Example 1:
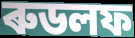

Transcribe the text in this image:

ৰুডলফ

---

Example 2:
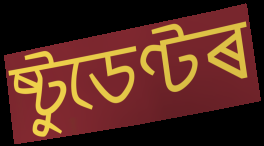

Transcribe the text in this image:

ষ্টুডেণ্টৰ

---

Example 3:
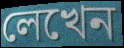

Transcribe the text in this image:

লেখেন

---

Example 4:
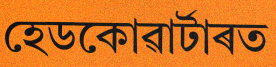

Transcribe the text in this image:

হেডকোৱাৰ্টাৰত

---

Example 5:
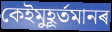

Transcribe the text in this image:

কেইমুহূৰ্তমানৰ